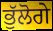
ਭੁੱਲੋਗੇ